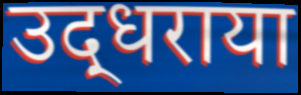
उद्धराया